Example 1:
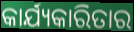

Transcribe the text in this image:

କାର୍ଯ୍ୟକାରିତାର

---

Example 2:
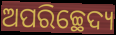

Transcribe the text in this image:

ଅପରିଚ୍ଛେଦ୍ୟ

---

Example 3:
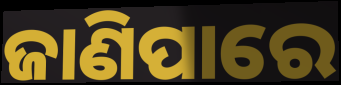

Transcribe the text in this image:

ଜାଣିପାରେ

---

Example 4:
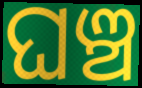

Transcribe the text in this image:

ଘଞ୍ଚ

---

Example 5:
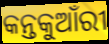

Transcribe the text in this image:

କନ୍ତକୁଆଁରୀ